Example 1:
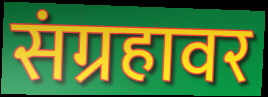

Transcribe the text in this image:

संग्रहावर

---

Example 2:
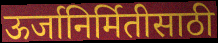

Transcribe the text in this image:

ऊर्जानिर्मितीसाठी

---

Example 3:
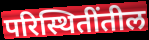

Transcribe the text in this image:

परिस्थितींतील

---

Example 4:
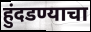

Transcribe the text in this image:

हुंदडण्याचा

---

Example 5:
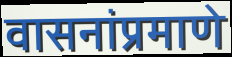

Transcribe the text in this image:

वासनांप्रमाणे